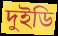
দুইডি